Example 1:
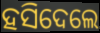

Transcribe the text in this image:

ହସିଦେଲେ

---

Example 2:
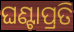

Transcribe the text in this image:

ଘଣ୍ଟାପ୍ରତି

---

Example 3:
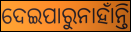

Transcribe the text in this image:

ଦେଇପାରୁନାହାଁନ୍ତି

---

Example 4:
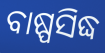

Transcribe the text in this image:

ବାଷ୍ପସିଦ୍ଧ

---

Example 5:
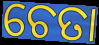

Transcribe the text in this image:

ଚେତା